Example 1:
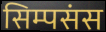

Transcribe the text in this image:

सिम्पसंस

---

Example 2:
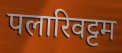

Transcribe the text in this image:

पलारिवट्टम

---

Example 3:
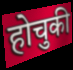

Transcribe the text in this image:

होचुकी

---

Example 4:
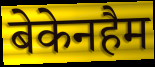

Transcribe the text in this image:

बेकेनहैम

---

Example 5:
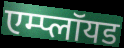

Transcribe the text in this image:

एम्प्लॉयड